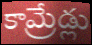
కామ్రేడ్లు